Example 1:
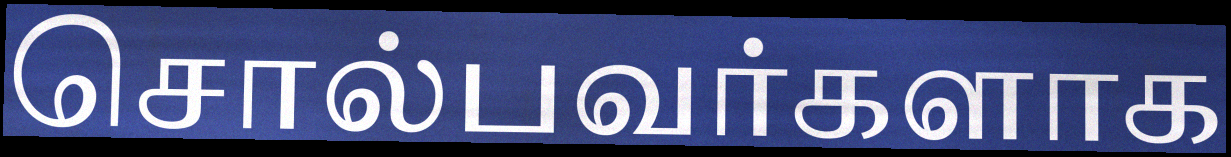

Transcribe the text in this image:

சொல்பவர்களாக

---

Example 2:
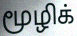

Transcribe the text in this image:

மூழிக்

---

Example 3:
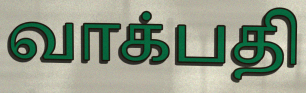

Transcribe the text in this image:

வாக்பதி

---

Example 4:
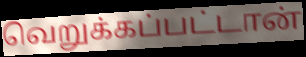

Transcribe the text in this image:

வெறுக்கப்பட்டான்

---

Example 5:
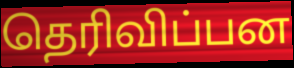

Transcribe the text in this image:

தெரிவிப்பன